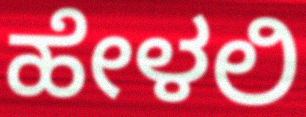
ಹೇಳಲಿ